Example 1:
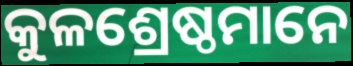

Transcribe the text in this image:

କୁଳଶ୍ରେଷ୍ଠମାନେ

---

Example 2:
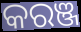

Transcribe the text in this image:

କରଞ୍ଜ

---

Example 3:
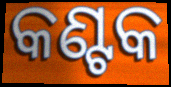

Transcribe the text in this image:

କଣ୍ଟକ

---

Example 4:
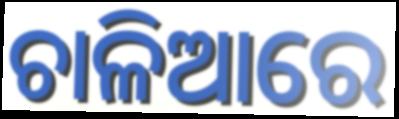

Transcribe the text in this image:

ଚାଳିଆରେ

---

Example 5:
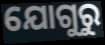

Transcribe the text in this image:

ଯୋଗୁରୁ